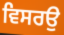
ਵਿਸਰਉ